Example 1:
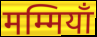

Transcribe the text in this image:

मम्मियाँ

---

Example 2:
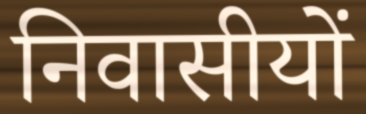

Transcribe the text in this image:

निवासीयों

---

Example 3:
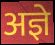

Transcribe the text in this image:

अज्ञे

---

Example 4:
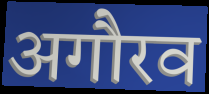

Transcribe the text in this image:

अगौरव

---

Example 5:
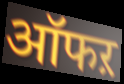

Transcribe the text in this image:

ऑफऱ